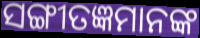
ସଙ୍ଗୀତଜ୍ଞମାନଙ୍କ